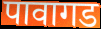
पावागड